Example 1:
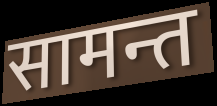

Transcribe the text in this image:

सामन्त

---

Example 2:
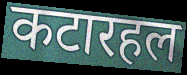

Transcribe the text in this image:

कटारहल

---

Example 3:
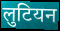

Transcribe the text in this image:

लुटियन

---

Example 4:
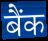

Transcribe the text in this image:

बैंक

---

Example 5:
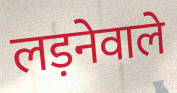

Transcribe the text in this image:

लड़नेवाले